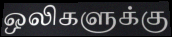
ஒலிகளுக்கு